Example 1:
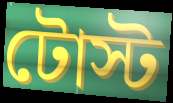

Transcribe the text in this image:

টোস্ট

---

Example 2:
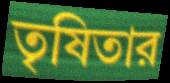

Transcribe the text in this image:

তৃষিতার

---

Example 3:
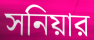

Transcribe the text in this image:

সনিয়ার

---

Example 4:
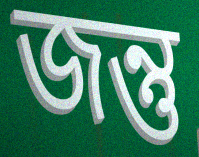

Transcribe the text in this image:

জন্তু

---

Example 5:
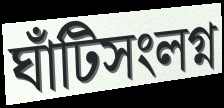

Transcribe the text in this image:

ঘাঁটিসংলগ্ন